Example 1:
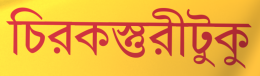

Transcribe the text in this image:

চিরকস্তুরীটুকু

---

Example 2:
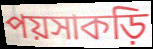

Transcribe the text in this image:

পয়সাকড়ি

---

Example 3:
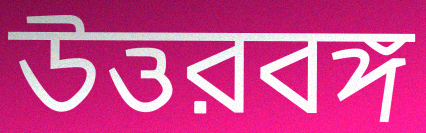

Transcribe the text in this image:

উত্তরবঙ্গ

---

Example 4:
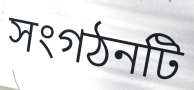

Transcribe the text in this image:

সংগঠনটি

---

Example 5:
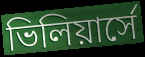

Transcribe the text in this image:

ভিলিয়ার্সে